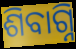
ଶିବାଗ୍ନି